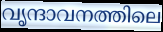
വൃന്ദാവനത്തിലെ